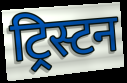
ट्रिस्टन